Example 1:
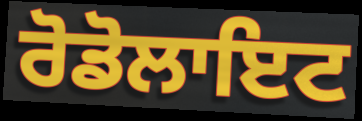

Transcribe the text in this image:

ਰੋਡੋਲਾਇਟ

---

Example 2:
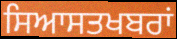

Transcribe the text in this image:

ਸਿਆਸਤਖਬਰਾਂ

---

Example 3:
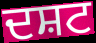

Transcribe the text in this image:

ਦਸ਼ਟ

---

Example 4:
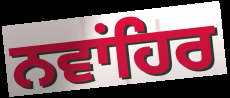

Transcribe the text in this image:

ਨਵਾਂਹਿਰ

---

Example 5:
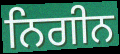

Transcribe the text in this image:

ਨਿਗੀਨ